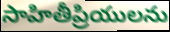
సాహితీప్రియులను